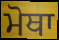
ਮੋਥਾ